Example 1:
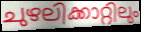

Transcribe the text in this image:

ചുഴലിക്കാറ്റിലും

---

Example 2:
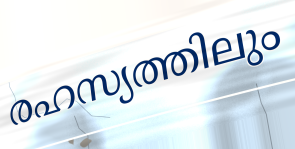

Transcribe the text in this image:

രഹസ്യത്തിലും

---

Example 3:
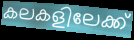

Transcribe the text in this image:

കലകളിലേക്ക്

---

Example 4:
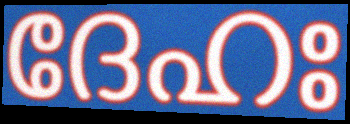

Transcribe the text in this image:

ദേഹഃ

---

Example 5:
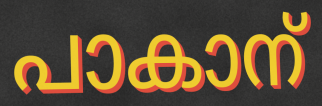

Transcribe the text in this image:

പാകാന്